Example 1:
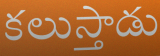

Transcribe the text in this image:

కలుస్తాడు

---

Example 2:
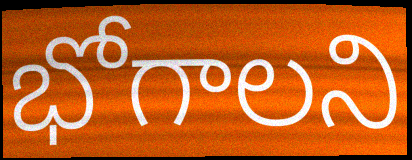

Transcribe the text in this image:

భోగాలని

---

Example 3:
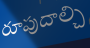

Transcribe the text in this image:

రూపుదాల్చి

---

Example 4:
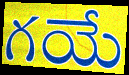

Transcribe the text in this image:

గయే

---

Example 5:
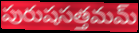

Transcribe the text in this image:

పురుషసత్తమమ్